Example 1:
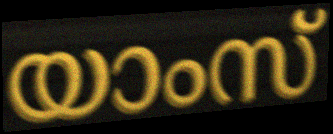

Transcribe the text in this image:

യാംസ്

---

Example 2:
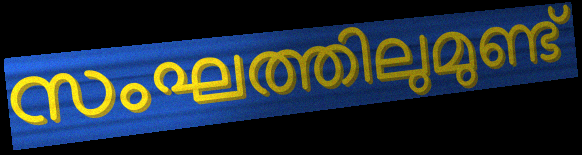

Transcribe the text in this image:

സംഘത്തിലുമുണ്ട്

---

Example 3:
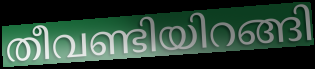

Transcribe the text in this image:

തീവണ്ടിയിറങ്ങി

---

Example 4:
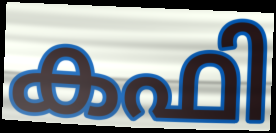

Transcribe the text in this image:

കഫി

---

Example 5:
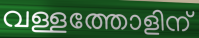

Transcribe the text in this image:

വള്ളത്തോളിന്